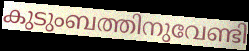
കുടുംബത്തിനുവേണ്ടി